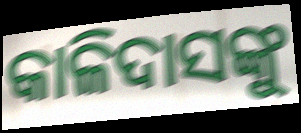
କାଳିଦାସଙ୍କୁ